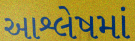
આશ્લેષમાં